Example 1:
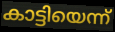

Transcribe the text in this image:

കാട്ടിയെന്ന്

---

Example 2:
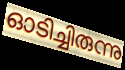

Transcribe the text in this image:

ഓടിച്ചിരുന്നു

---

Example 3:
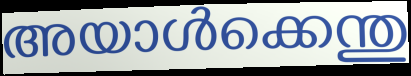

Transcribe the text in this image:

അയാൾക്കെന്തു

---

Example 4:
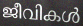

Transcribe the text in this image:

ജീവികൾ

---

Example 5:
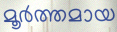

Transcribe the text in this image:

മൂർത്തമായ